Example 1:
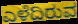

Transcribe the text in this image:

ಎಳೆದಿರುವ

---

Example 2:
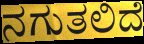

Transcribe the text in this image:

ನಗುತಲಿದೆ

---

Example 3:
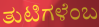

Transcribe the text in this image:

ತುಟಿಗಳೆಂಬ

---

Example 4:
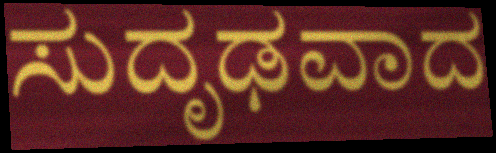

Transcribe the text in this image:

ಸುದೃಢವಾದ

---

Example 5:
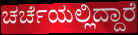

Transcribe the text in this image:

ಚರ್ಚೆಯಲ್ಲಿದ್ದಾರೆ